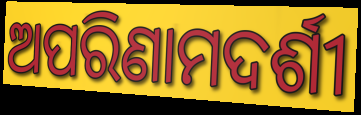
ଅପରିଣାମଦର୍ଶୀ